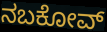
ನಬಕೋವ್